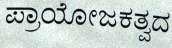
ಪ್ರಾಯೋಜಕತ್ವದ